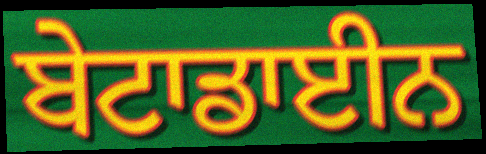
ਬੇਟਾਡਾਈਨ